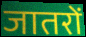
जातरों